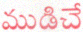
ముడిచే